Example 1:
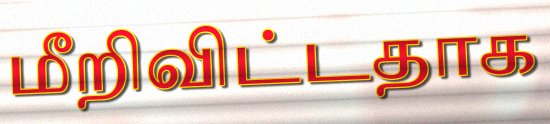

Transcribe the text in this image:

மீறிவிட்டதாக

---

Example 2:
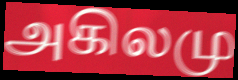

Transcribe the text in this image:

அகிலமு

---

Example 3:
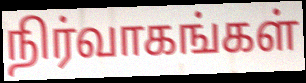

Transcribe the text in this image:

நிர்வாகங்கள்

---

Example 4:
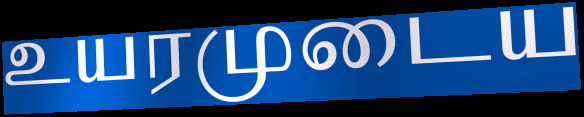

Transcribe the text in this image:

உயரமுடைய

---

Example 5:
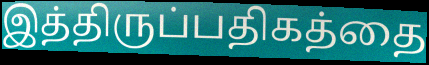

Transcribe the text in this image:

இத்திருப்பதிகத்தை